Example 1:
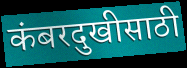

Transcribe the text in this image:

कंबरदुखीसाठी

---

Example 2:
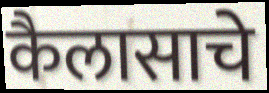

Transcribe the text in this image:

कैलासाचे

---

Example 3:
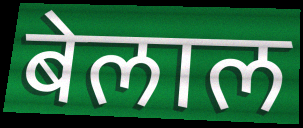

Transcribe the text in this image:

बेलाल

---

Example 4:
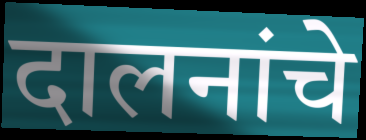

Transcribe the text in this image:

दालनांचे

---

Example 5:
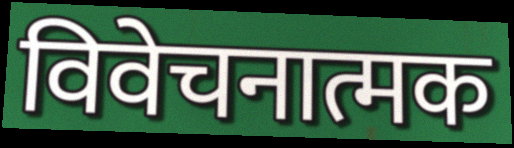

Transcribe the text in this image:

विवेचनात्मक